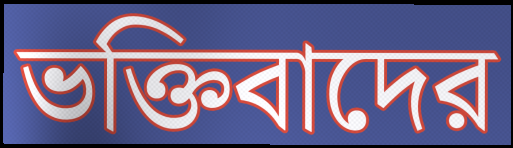
ভক্তিবাদের